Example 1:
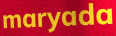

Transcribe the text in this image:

maryada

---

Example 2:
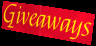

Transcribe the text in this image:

Giveaways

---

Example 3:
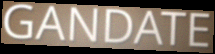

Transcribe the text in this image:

GANDATE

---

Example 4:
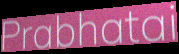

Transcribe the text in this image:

Prabhatai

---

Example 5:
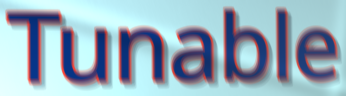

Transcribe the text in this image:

Tunable